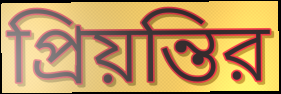
প্রিয়ন্তির